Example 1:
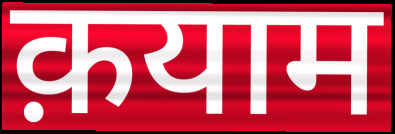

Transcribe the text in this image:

क़याम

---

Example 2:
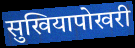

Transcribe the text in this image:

सुखियापोखरी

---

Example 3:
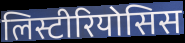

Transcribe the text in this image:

लिस्टीरियोसिस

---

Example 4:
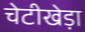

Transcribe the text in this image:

चेटीखेड़ा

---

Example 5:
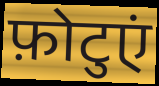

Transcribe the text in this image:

फ़ोटुएं